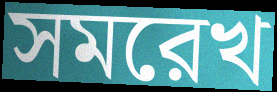
সমরেখ